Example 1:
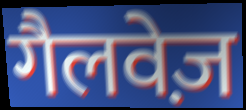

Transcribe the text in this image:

गैलवेज़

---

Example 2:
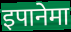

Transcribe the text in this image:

इपानेमा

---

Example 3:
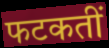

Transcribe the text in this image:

फटकतीं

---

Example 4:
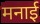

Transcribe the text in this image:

मनाई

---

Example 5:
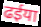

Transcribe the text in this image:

ढईया